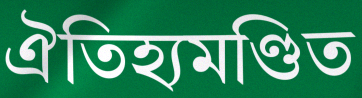
ঐতিহ্যমণ্ডিত